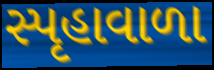
સ્પૃહાવાળા